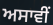
ਅਸਾਵੀਂ